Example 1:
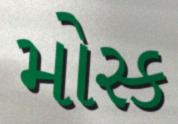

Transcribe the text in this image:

મોસ્ક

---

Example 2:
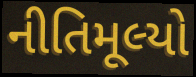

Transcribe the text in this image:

નીતિમૂલ્યો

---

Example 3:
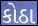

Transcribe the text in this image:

કોઠા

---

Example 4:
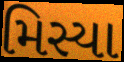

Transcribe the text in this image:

મિસ્યા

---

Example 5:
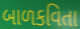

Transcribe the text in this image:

બાળકવિતા